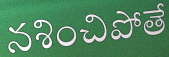
నశించిపోతే